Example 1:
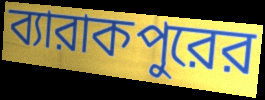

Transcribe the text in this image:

ব্যারাকপুরের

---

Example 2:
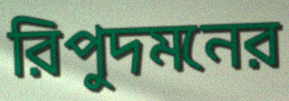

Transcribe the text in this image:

রিপুদমনের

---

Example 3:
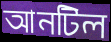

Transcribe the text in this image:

আনটিল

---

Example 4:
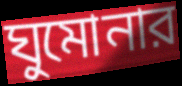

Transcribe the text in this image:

ঘুমোনার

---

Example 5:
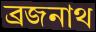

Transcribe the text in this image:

ব্রজনাথ